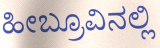
ಹೀಬ್ರೂವಿನಲ್ಲಿ